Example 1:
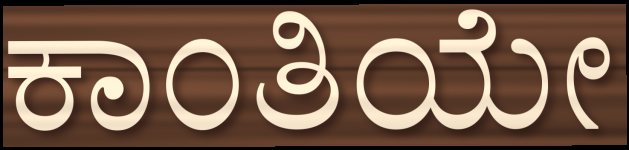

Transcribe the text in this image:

ಕಾಂತಿಯೇ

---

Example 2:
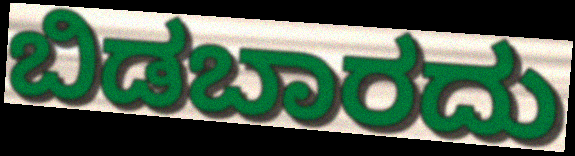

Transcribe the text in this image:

ಬಿಡಬಾರದು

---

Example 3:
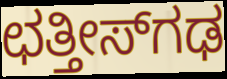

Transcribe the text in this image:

ಛತ್ತೀಸ್‍ಗಢ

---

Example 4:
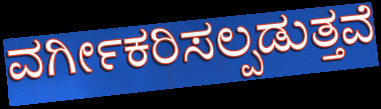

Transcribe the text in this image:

ವರ್ಗೀಕರಿಸಲ್ಪಡುತ್ತವೆ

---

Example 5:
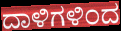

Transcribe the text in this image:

ದಾಳಿಗಳಿಂದ